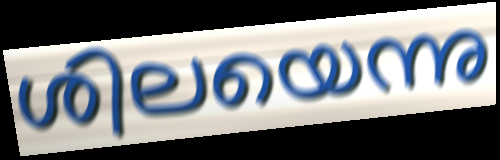
ശിലയെന്നു